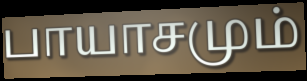
பாயாசமும்